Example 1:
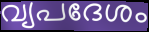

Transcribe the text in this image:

വ്യപദേശം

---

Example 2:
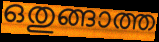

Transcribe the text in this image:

ഒതുങ്ങാത്ത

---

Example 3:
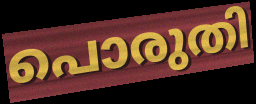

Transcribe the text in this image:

പൊരുതി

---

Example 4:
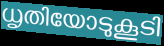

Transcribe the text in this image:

ധൃതിയോടുകൂടി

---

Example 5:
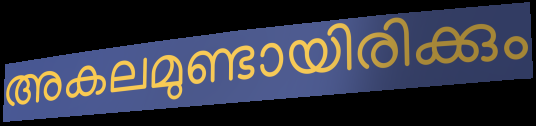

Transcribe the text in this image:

അകലമുണ്ടായിരിക്കും